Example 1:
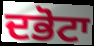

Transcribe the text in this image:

ਦਭੋਟਾ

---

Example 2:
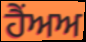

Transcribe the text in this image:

ਹੈਂਅਅ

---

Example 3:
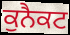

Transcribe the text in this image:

ਕੁਨੈਕਟ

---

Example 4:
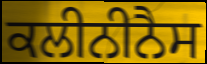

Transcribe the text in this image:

ਕਲੀਨੀਨੈਸ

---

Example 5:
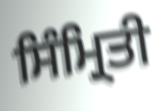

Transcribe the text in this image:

ਸਿੰਮ੍ਰਿਤੀ